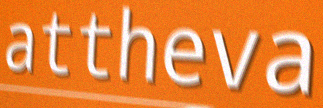
attheva